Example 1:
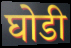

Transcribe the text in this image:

घोडी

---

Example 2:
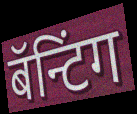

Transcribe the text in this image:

बॅन्टिंग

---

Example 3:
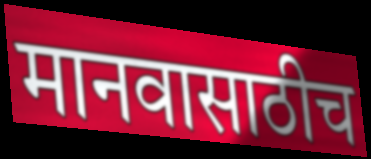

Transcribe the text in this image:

मानवासाठीच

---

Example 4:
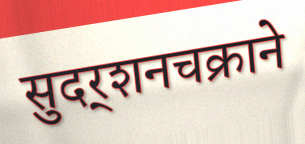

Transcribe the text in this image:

सुदर्शनचक्राने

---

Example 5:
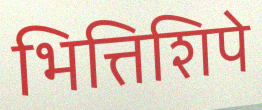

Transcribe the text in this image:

भित्तिशिपे